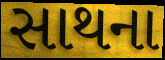
સાથના